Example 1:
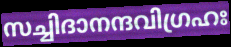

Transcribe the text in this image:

സച്ചിദാനന്ദവിഗ്രഹഃ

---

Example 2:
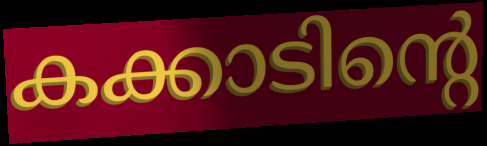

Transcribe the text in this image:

കക്കാടിന്റെ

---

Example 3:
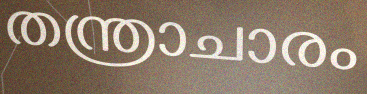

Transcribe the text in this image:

തന്ത്രാചാരം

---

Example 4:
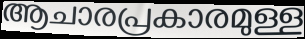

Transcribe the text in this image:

ആചാരപ്രകാരമുള്ള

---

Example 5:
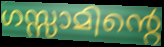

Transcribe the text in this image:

ഗസ്സാമിന്റെ